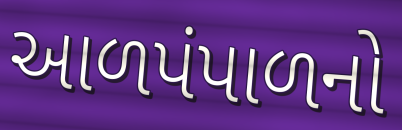
આળપંપાળનો